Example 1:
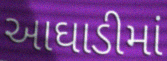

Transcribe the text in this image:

આઘાડીમાં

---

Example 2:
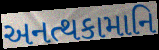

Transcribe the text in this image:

અનત્થકામાનિ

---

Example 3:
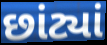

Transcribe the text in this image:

છાંટ્યાં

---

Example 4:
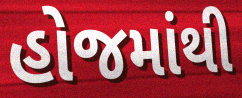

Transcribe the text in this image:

હોજમાંથી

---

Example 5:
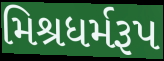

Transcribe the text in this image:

મિશ્રધર્મરૂપ